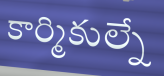
కార్మికుల్నే